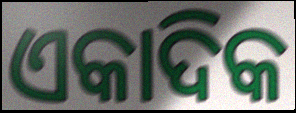
ଏକାଦିକ